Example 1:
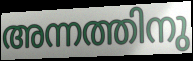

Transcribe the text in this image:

അന്നത്തിനു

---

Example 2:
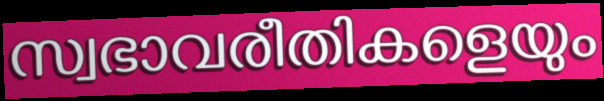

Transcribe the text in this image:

സ്വഭാവരീതികളെയും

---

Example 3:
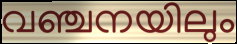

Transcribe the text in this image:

വഞ്ചനയിലും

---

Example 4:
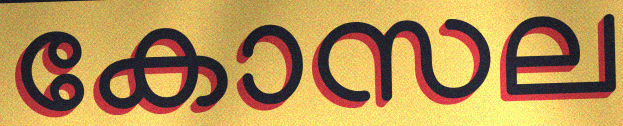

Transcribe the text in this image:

കോസല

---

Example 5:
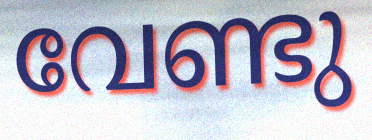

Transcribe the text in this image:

വേണ്ടു